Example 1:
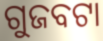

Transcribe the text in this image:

ଗୁଜବଟା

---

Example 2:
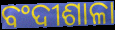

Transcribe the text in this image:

ବଂଦୀଶାଳା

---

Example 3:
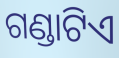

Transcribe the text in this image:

ଗଣ୍ଡାଟିଏ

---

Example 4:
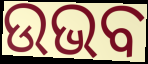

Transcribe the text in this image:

ଉଭବ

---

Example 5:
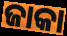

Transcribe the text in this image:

ଜାକା